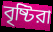
বৃষ্টিরা